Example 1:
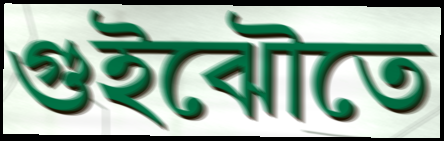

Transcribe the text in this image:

গুইঝৌতে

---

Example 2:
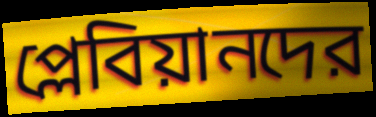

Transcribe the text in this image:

প্লেবিয়ানদের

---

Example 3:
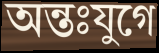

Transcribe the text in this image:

অন্তঃযুগে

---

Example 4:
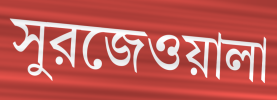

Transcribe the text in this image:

সুরজেওয়ালা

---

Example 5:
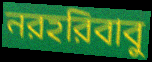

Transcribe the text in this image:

নরহরিবাবু